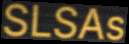
SLSAs